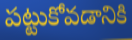
పట్టుకోవడానికి